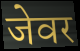
जेवर